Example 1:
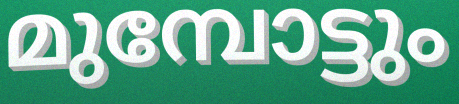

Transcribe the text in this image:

മുമ്പോട്ടും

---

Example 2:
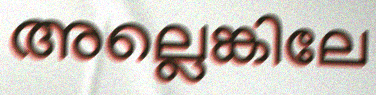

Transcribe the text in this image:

അല്ലെങ്കിലേ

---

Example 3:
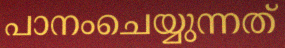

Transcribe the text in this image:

പാനംചെയ്യുന്നത്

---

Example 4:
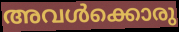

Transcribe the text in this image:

അവൾക്കൊരു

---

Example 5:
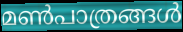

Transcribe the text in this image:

മൺപാത്രങ്ങൾ